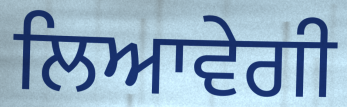
ਲਿਆਵੇਗੀ